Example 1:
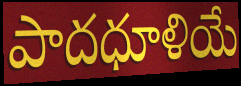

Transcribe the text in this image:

పాదధూళియే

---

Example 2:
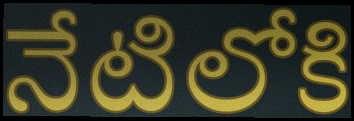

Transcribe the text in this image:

నేటిలోకి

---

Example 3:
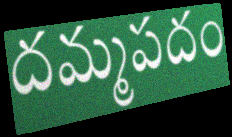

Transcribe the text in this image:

దమ్మపదం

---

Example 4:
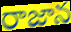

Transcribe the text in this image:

రాజాన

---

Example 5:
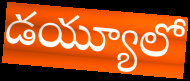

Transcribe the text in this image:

డయ్యూలో